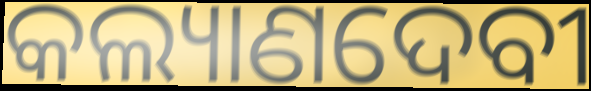
କଲ୍ୟାଣଦେବୀ